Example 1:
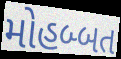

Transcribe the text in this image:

મોહબ્બત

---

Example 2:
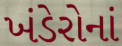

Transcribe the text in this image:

ખંડેરોનાં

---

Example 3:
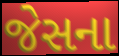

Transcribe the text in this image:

જેસના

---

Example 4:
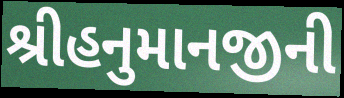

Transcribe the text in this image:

શ્રીહનુમાનજીની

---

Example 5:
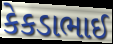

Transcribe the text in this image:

કેકડાભાઈ